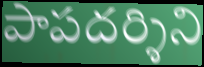
పాపదర్శిని